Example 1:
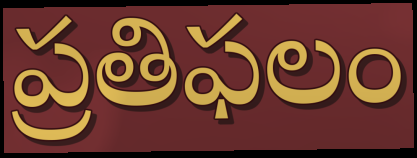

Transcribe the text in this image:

ప్రతిఫలం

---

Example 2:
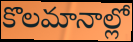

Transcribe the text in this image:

కొలమానాల్లో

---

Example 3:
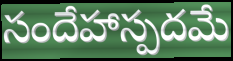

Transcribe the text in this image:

సందేహాస్పదమే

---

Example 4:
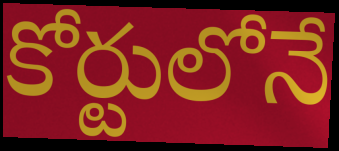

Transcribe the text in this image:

కోర్టులోనే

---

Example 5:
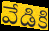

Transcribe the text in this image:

వేడికి